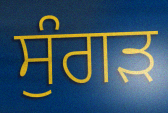
ਸੁੰਗੜ